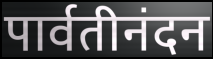
पार्वतीनंदन